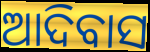
ଆଦିବାସ